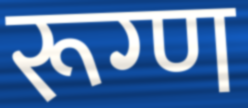
रूग्ण